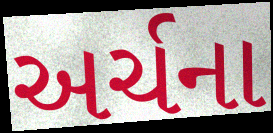
અર્ચના